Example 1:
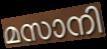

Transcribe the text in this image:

മസാനി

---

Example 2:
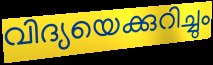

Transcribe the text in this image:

വിദ്യയെക്കുറിച്ചും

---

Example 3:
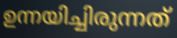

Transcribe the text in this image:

ഉന്നയിച്ചിരുന്നത്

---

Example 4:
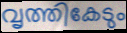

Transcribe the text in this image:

വൃത്തികേടും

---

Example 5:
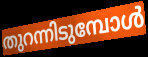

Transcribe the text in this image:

തുറന്നിടുമ്പോൾ